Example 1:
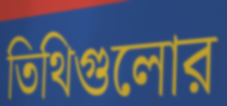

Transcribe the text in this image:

তিথিগুলোর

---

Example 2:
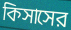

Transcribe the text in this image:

কিসাসের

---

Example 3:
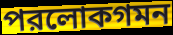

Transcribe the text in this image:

পরলোকগমন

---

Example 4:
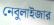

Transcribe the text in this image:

নেবুলাইজার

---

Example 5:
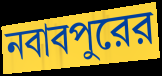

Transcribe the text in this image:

নবাবপুরের